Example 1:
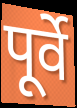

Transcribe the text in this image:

पूर्वे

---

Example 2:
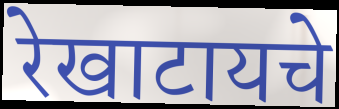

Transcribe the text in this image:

रेखाटायचे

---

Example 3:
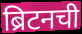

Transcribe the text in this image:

ब्रिटनची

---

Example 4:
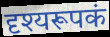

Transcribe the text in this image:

दृश्‍यरूपकं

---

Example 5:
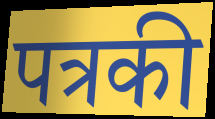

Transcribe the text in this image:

पत्रकी